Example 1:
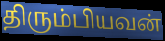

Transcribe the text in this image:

திரும்பியவன்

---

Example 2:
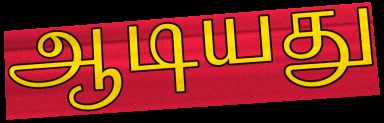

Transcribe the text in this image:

ஆடியது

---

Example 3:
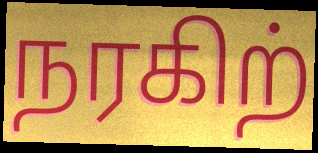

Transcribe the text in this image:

நரகிற்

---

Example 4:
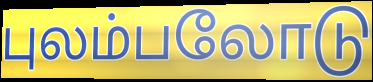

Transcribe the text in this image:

புலம்பலோடு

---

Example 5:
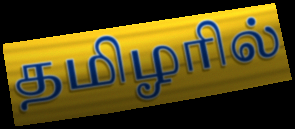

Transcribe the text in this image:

தமிழரில்